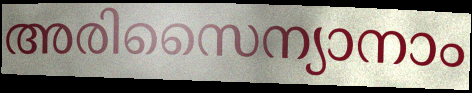
അരിസൈന്യാനാം